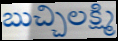
బుచ్చిలక్ష్మి